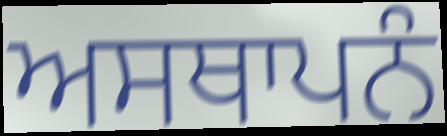
ਅਸਥਾਪਨੰ